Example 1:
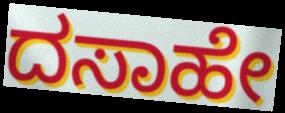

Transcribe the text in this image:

ದಸಾಹೇ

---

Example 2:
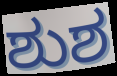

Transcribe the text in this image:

ಶುಶ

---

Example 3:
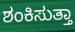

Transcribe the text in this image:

ಶಂಕಿಸುತ್ತಾ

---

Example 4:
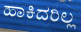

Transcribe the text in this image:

ಹಾಕಿದರಿಲ್ಲ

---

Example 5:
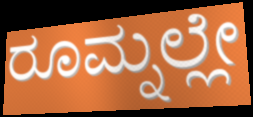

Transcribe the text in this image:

ರೂಮ್ನಲ್ಲೇ